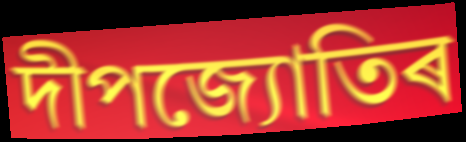
দীপজ্যোতিৰ